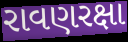
રાવણરક્ષા